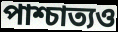
পাশ্চাত্যও